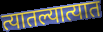
त्यातल्यात्यात